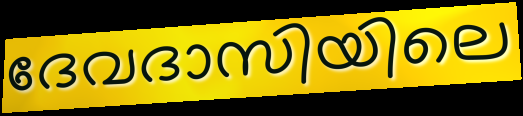
ദേവദാസിയിലെ